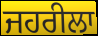
ਜਹਰੀਲਾ